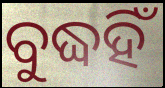
ବୁଦ୍ଧହିଁ